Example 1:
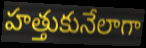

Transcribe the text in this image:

హత్తుకునేలాగా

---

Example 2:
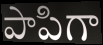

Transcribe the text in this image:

పాపిగా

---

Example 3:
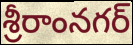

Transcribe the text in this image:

శ్రీరాంనగర్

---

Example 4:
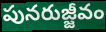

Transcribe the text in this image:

పునరుజ్జీవం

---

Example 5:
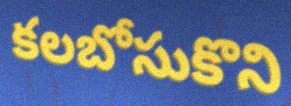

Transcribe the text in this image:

కలబోసుకొని